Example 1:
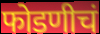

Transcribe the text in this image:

फोडणीचं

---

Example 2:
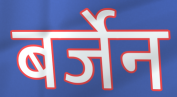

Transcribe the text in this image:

बर्जेन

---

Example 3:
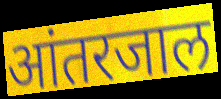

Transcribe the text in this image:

आंतरजाल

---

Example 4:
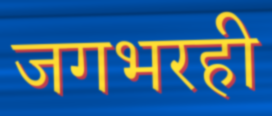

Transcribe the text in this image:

जगभरही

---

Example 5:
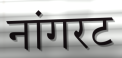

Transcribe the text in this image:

नांगरट